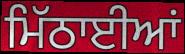
ਮਿੱਠਾਈਆਂ